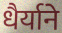
धैर्याने